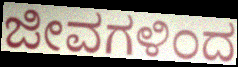
ಜೀವಗಳಿಂದ